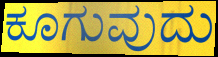
ಕೂಗುವುದು